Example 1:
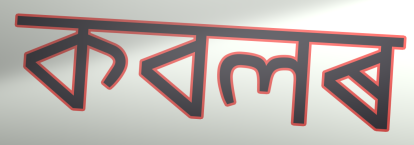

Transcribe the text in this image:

কবলৰ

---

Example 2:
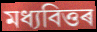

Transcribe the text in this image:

মধ্যবিত্তৰ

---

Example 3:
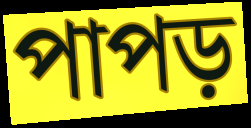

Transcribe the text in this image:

পাপড়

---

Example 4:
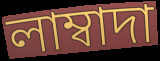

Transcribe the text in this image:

লাম্বাদা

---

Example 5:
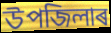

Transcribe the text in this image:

উপজিলাৰ